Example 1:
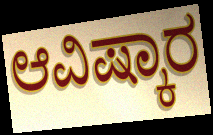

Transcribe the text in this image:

ಆವಿಷ್ಕಾರ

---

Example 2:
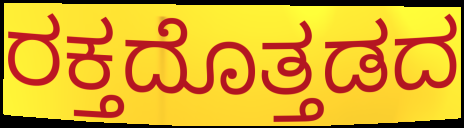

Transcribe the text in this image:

ರಕ್ತದೊತ್ತಡದ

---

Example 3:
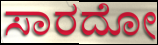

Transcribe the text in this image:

ಸಾರದೋ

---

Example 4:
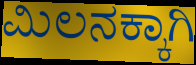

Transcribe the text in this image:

ಮಿಲನಕ್ಕಾಗಿ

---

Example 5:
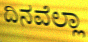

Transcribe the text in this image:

ದಿನವೆಲ್ಲಾ